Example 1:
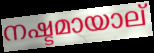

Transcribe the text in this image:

നഷ്ടമായാല്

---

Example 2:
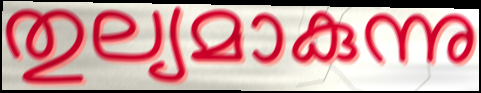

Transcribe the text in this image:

തുല്യമാകുന്നു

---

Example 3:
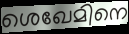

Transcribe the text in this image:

ശെഖേമിനെ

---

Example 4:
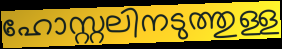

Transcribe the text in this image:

ഹോസ്റ്റലിനടുത്തുള്ള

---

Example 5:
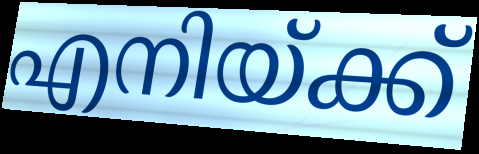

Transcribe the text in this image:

എനിയ്ക്ക്